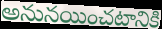
అనునయించటానికి